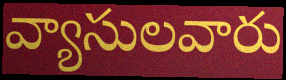
వ్యాసులవారు